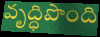
వృద్ధిపొంది